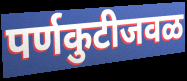
पर्णकुटीजवळ